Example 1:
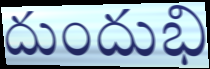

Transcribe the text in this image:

దుందుభి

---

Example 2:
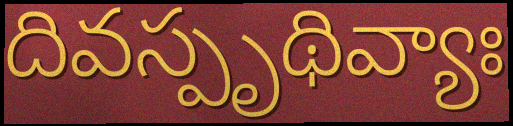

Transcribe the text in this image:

దివస్పృథివ్యాః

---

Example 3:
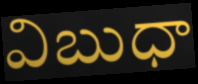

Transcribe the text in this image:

విబుధా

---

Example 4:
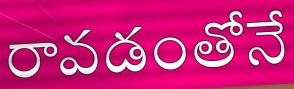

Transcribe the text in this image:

రావడంతోనే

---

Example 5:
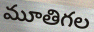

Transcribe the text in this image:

మూతిగల